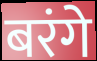
बरंगे